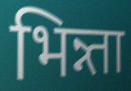
भिन्न्ता